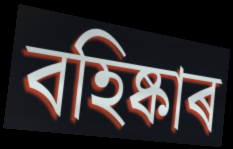
বহিষ্কাৰ